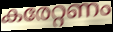
കരേറ്റണം